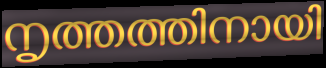
നൃത്തത്തിനായി